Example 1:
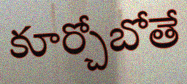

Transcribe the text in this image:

కూర్చోబోతే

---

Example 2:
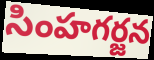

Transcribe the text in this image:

సింహగర్జన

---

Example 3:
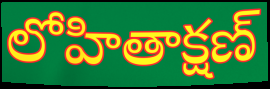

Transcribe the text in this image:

లోహితాక్షణ్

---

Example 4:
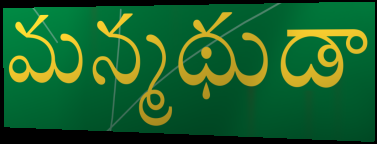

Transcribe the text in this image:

మన్మథుడా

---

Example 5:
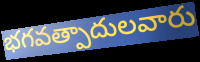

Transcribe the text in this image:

భగవత్పాదులవారు